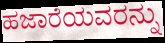
ಹಜಾರೆಯವರನ್ನು